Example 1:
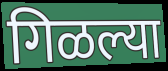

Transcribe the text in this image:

गिळल्या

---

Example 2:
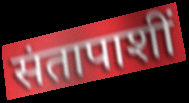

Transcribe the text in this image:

संतापाशीं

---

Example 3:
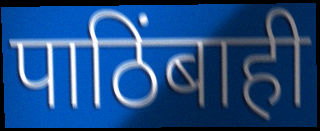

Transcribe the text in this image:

पाठिंबाही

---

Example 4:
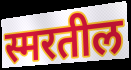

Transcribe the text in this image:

स्मरतील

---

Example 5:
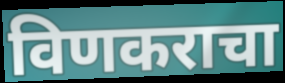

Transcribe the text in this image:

विणकराचा